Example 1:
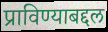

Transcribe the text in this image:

प्राविण्याबद्दल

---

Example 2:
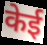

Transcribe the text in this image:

केई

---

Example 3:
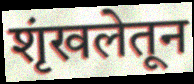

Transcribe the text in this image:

शृंखलेतून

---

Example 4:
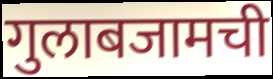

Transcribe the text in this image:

गुलाबजामची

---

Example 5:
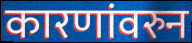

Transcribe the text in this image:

कारणांवरुन